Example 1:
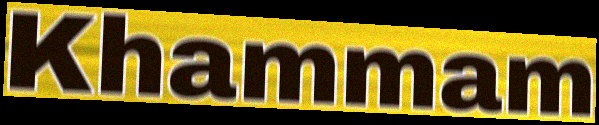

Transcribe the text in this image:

Khammam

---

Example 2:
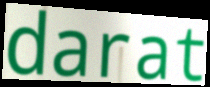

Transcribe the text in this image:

darat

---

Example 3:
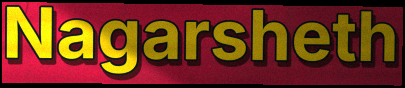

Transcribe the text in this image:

Nagarsheth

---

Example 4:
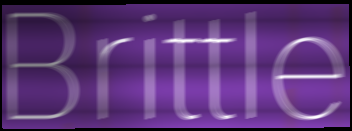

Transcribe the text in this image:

Brittle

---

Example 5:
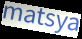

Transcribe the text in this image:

matsya